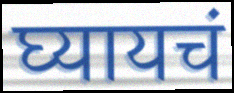
घ्यायचं